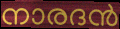
നാരദൻ